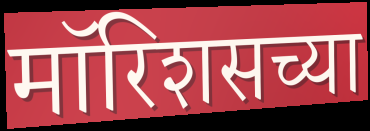
मॉरिशसच्या